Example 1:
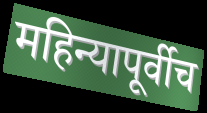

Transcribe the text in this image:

महिन्यापूर्वीच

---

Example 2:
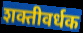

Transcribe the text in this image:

शक्तीवर्धक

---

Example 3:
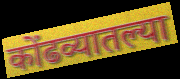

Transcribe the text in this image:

कोंढव्यातल्या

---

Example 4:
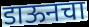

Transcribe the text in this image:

डाऊनचा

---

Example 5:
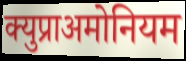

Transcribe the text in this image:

क्युप्राअमोनियम